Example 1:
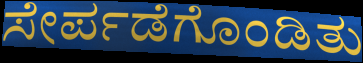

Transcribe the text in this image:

ಸೇರ್ಪಡೆಗೊಂಡಿತು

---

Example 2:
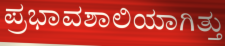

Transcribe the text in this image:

ಪ್ರಭಾವಶಾಲಿಯಾಗಿತ್ತು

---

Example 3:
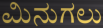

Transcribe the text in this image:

ಮಿನುಗಲು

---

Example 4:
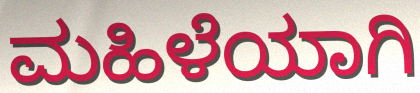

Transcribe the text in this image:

ಮಹಿಳೆಯಾಗಿ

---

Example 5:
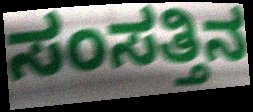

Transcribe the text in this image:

ಸಂಸತ್ತಿನ